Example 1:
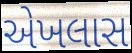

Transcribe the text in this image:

એખલાસ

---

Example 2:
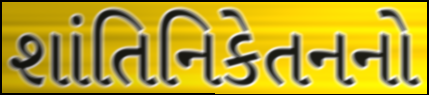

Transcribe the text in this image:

શાંતિનિકેતનનો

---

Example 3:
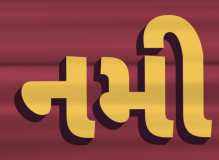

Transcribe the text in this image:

નમી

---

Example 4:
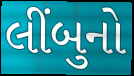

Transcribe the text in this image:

લીંબુનો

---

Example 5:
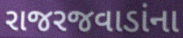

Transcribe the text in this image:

રાજરજવાડાંના